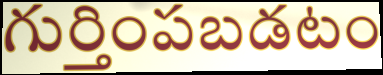
గుర్తింపబడటం